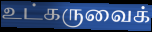
உட்கருவைக்